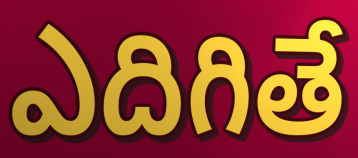
ఎదిగితే